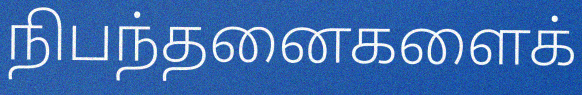
நிபந்தனைகளைக்